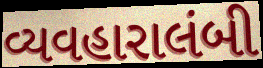
વ્યવહારાલંબી